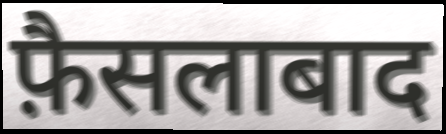
फ़ैसलाबाद